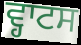
ਵ੍ਹਾਟਸ